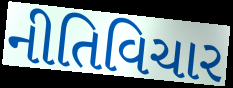
નીતિવિચાર